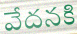
వేదనకి